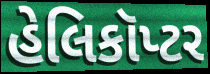
હેલિકૉપ્ટર